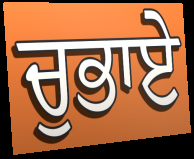
ਚੁਭਾਏ